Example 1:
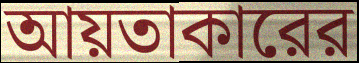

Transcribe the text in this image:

আয়তাকারের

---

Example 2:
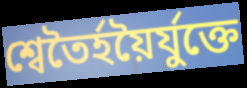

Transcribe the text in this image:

শ্বেতৈর্হয়ৈর্যুক্তে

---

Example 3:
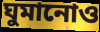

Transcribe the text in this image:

ঘুমানোও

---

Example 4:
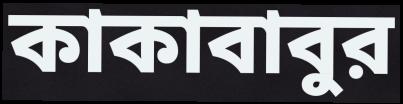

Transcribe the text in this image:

কাকাবাবুর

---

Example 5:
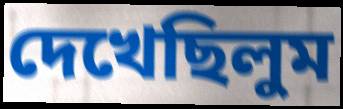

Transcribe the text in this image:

দেখেছিলুম